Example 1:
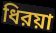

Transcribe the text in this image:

ধিরয়া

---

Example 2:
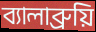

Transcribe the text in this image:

ব্যালাব্রুয়ি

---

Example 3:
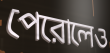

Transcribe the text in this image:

পেরোলেও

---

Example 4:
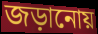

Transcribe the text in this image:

জড়ানোয়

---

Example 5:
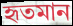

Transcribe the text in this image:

হৃতমান